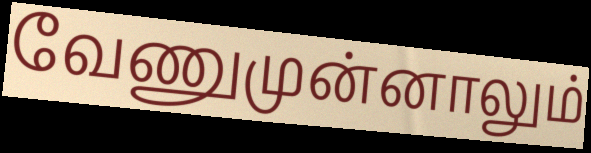
வேணுமுன்னாலும்